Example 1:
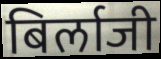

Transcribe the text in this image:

बिर्लाजी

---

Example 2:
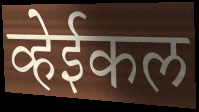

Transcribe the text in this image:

व्हेईकल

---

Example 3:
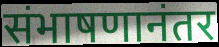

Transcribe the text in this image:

संभाषणानंतर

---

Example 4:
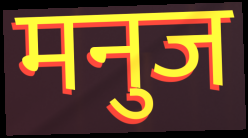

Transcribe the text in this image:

मनुज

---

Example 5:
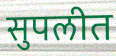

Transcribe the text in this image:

सुपलीत